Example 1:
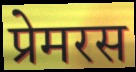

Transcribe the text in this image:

प्रेमरस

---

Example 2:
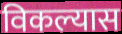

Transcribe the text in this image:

विकल्यास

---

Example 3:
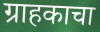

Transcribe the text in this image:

ग्राहकाचा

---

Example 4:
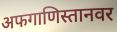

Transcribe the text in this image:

अफगाणिस्तानवर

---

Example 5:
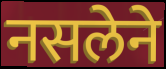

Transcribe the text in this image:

नसलेने